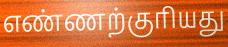
எண்ணற்குரியது